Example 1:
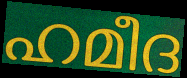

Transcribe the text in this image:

ഹമീദ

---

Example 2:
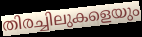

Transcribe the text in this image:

തിരച്ചിലുകളെയും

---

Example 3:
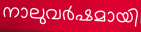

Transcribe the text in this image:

നാലുവർഷമായി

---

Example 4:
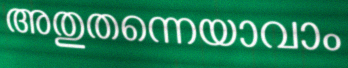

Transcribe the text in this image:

അതുതന്നെയാവാം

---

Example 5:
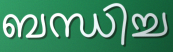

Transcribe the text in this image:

ബന്ധിച്ച